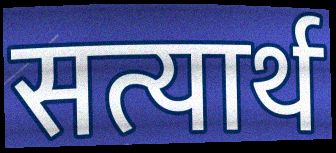
सत्यार्थ